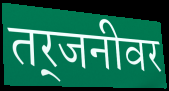
तर्जनीवर